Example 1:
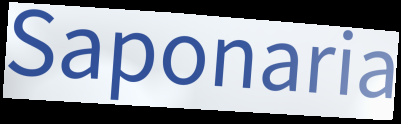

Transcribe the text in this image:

Saponaria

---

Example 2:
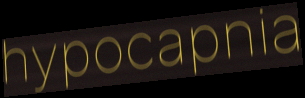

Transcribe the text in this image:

hypocapnia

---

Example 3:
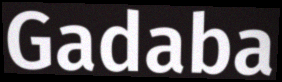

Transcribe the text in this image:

Gadaba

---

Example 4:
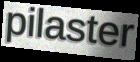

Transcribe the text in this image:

pilaster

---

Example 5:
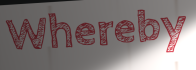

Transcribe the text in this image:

Whereby